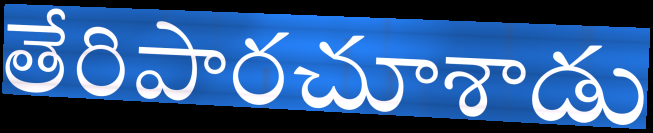
తేరిపారచూశాడు